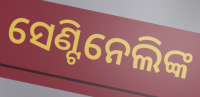
ସେଣ୍ଟିନେଲିଙ୍କ